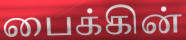
பைக்கின்